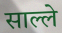
साल्ले